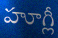
హూగ్లీ